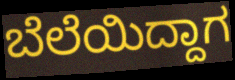
ಬೆಲೆಯಿದ್ದಾಗ